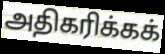
அதிகரிக்கக்